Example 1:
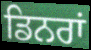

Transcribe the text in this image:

ਡਿਨਰਾਂ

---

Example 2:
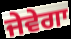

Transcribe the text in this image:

ਜੇਵੇਗਾ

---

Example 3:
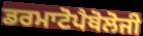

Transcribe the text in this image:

ਡਰਮਾਟੋਪੈਥੋਲੋਜੀ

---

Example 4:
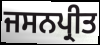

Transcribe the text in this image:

ਜਸਨਪ੍ਰੀਤ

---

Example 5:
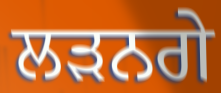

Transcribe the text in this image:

ਲੜਨਗੇ